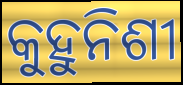
କୁହୁନିଶୀ